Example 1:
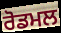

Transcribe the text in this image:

ਰੋਡਮਲ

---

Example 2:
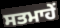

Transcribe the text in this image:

ਸਤਮਾਹੇਂ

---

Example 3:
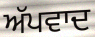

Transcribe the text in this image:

ਅੱਪਵਾਦ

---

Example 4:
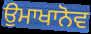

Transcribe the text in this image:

ਉਮਾਖਾਨੋਵ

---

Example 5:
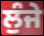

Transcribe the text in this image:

ਲੁੰਜੇ